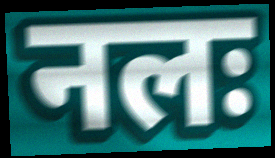
नलः